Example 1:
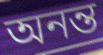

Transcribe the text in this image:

অনন্ত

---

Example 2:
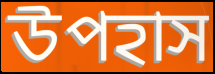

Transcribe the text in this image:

উপহাস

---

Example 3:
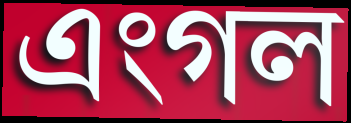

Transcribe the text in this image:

এংগল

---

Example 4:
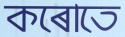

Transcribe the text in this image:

কৰোতে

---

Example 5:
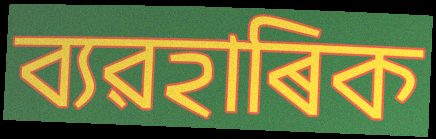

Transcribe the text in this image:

ব্যৱহাৰিক